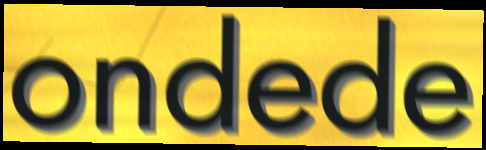
ondede